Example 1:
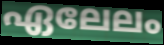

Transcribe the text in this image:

ഏലേലം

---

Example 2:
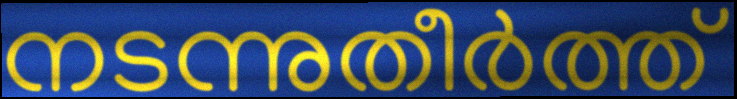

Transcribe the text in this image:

നടന്നുതീർത്ത്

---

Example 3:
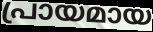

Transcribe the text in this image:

പ്രായമായ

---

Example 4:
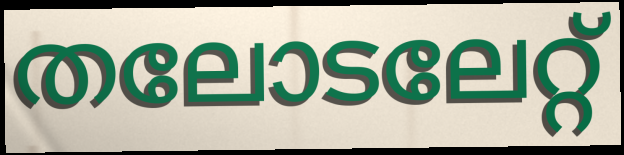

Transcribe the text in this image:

തലോടലേറ്റ്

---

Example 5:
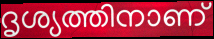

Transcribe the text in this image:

ദൃശ്യത്തിനാണ്